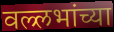
वल्लभांच्या